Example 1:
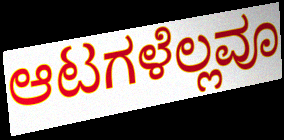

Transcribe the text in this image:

ಆಟಗಳೆಲ್ಲವೂ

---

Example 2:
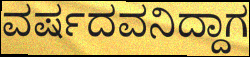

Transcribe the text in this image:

ವರ್ಷದವನಿದ್ದಾಗ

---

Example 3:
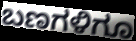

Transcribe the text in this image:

ಬಣಗಳಿಗೂ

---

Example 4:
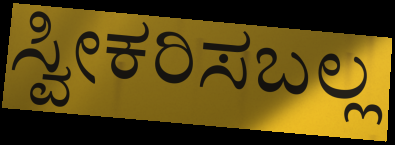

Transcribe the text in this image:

ಸ್ವೀಕರಿಸಬಲ್ಲ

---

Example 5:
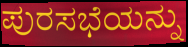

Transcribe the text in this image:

ಪುರಸಭೆಯನ್ನು